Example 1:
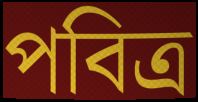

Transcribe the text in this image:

পবিত্র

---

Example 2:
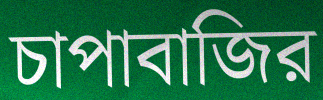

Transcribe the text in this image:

চাপাবাজির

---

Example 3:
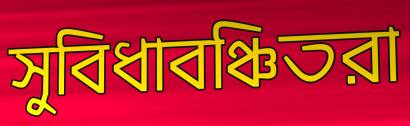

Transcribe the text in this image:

সুবিধাবঞ্চিতরা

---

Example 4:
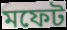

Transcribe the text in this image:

মফেট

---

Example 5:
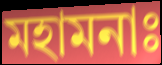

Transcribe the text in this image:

মহামনাঃ